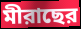
মীরাছের